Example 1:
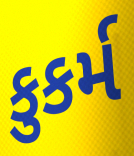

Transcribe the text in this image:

કુકર્મ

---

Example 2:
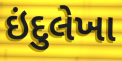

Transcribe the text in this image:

ઇંદુલેખા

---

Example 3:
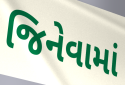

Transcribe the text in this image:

જિનેવામાં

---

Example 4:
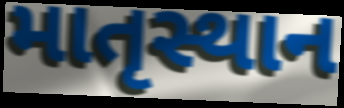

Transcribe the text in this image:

માતૃસ્થાન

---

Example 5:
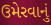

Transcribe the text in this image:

ઉમેરવાનું